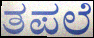
ತಪಲೆ